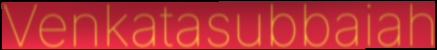
Venkatasubbaiah